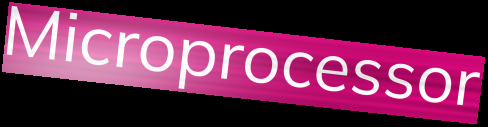
Microprocessor